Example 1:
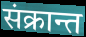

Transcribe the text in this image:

संक्रान्त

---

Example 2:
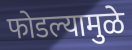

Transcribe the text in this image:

फोडल्यामुळे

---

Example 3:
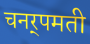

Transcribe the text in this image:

चनर्पमती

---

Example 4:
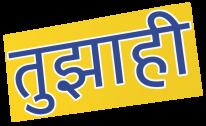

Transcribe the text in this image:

तुझाही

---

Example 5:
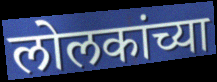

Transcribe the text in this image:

लोलकांच्या